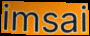
imsai